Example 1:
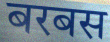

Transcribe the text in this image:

बरबस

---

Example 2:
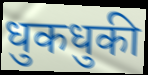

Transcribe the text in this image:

धुकधुकी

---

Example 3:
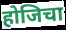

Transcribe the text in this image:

होजिचा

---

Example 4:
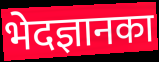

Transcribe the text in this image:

भेदज्ञानका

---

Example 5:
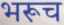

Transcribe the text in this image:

भरूच